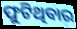
ଫୁଟିଥିବାର